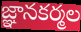
జ్ఞానకర్మల